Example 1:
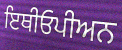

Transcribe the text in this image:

ਇਥੀਓਪੀਅਨ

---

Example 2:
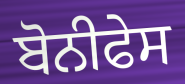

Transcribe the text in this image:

ਬੋਨੀਫੇਸ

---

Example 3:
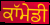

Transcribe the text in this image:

ਕਾੱਮੇਡੀ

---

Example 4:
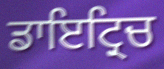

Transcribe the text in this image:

ਡਾਇਟ੍ਰਿਚ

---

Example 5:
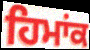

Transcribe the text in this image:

ਹਿਮਾਂਕ